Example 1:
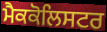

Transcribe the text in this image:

ਮੈਕਕੋਲਿਸਟਰ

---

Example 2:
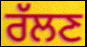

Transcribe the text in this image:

ਰੱਲਣ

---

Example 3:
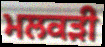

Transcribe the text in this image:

ਮਲਕੜੀ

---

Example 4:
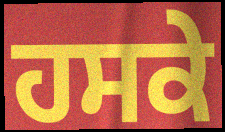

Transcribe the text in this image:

ਹਸਕੇ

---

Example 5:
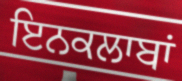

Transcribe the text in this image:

ਇਨਕਲਾਬਾਂ